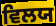
ਵਿਲਯ